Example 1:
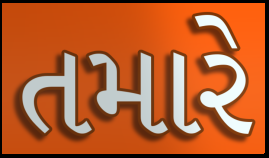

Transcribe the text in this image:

તમારે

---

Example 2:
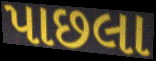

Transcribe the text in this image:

પાછલા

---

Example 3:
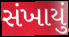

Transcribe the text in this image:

સંખાયું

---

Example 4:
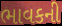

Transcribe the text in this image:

ભાવકની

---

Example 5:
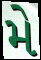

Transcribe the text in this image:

મે